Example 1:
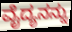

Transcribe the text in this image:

ವೈದ್ಯನನ್ನು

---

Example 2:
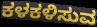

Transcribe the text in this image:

ಕಳಕಳಿಸುವ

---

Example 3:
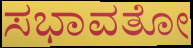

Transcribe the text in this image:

ಸಭಾವತೋ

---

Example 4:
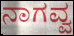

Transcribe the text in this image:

ನಾಗವ್ವ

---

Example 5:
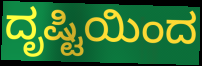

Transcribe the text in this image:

ದೃಷ್ಟಿಯಿಂದ